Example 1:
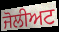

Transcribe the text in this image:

ਜੋਲੀਅਟ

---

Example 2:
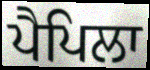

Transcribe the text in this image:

ਪੈਪਿਲਾ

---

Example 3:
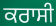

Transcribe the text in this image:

ਕਰਾਸੀ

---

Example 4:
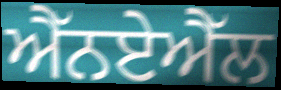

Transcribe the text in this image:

ਐੱਨਏਐੱਲ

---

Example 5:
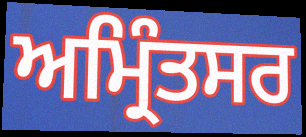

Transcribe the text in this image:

ਅਮ੍ਰਿੰਤਸਰ